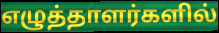
எழுத்தாளர்களில்